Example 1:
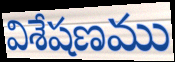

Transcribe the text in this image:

విశేషణము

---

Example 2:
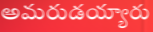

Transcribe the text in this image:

అమరుడయ్యారు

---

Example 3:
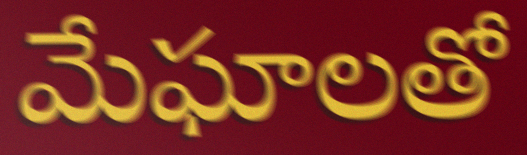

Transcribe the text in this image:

మేఘాలతో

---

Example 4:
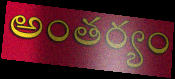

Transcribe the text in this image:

అంతర్యం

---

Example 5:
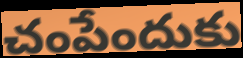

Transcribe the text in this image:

చంపేందుకు